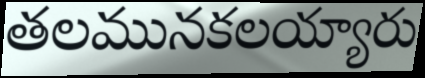
తలమునకలయ్యారు